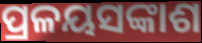
ପ୍ରଳୟସଙ୍କାଶ